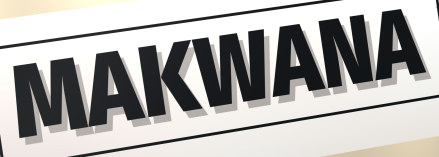
MAKWANA